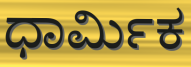
ಧಾರ್ಮಿಕ